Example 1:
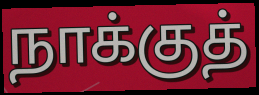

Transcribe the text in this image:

நாக்குத்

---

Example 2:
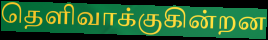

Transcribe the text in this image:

தெளிவாக்குகின்றன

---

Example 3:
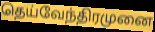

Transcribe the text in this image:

தெய்வேந்திரமுனை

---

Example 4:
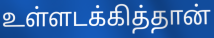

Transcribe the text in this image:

உள்ளடக்கித்தான்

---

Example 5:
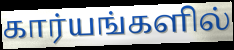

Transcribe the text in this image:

கார்யங்களில்